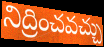
నిద్రించవచ్చు